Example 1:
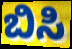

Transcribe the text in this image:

ಬಿಸಿ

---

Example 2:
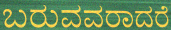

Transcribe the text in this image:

ಬರುವವರಾದರೆ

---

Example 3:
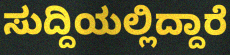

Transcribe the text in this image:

ಸುದ್ದಿಯಲ್ಲಿದ್ದಾರೆ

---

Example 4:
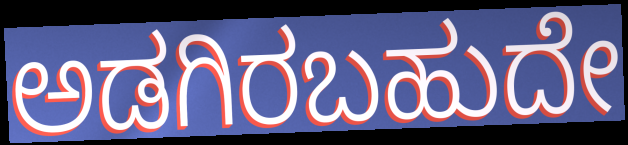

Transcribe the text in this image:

ಅಡಗಿರಬಹುದೇ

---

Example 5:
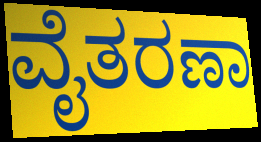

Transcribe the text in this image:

ವೈತರಣಾ